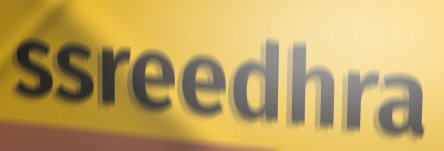
ssreedhra